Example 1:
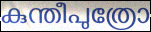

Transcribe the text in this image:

കുന്തീപുത്രോ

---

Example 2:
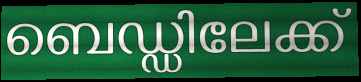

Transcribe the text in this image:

ബെഡ്ഡിലേക്ക്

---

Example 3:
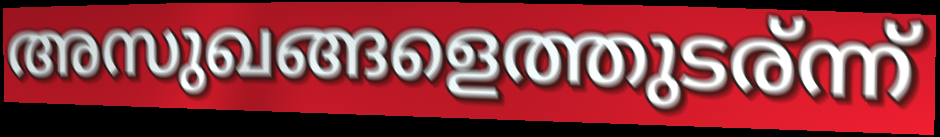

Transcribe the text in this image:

അസുഖങ്ങളെത്തുടര്ന്ന്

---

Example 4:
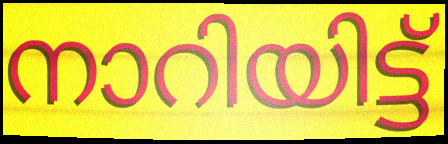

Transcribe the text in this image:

നാറിയിട്ട്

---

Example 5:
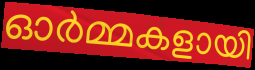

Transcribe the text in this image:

ഓർമ്മകളായി